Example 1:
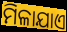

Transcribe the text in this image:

ମିଳାଯାଏ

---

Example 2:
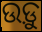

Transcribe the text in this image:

ଉଡ଼ୁ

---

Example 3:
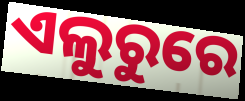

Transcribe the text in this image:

ଏଲୁରୁରେ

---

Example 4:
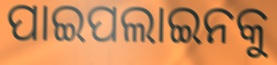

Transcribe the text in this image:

ପାଇପଲାଇନକୁ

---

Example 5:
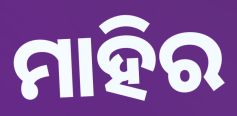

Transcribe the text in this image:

ମାହିର